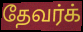
தேவர்க்